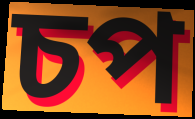
চপ